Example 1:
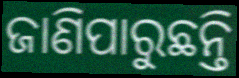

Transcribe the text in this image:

ଜାଣିପାରୁଛନ୍ତି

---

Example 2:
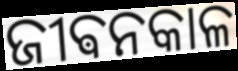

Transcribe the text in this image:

ଜୀଵନକାଳ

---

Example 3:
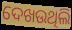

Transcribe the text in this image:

ଦେଖଉଥିଲି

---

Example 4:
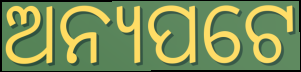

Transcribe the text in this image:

ଅନ୍ୟପଟେ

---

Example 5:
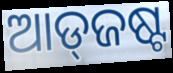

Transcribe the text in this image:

ଆଡ୍‌ଜଷ୍ଟ